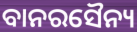
ବାନରସୈନ୍ୟ